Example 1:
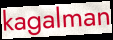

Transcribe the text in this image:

kagalman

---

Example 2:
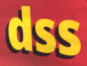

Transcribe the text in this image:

dss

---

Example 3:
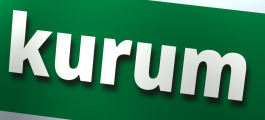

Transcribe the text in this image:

kurum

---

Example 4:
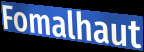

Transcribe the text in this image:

Fomalhaut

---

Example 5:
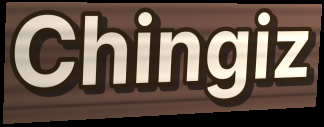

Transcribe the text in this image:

Chingiz